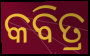
କବିତ୍ର